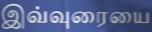
இவ்வுரையை